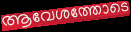
ആവേശത്തോടെ